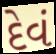
દેવં